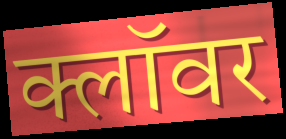
क्लॉवर